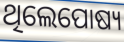
ଥିଲେପୋଷ୍ୟ